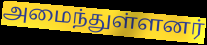
அமைந்துள்ளனர்